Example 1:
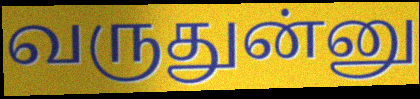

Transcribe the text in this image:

வருதுன்னு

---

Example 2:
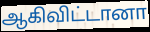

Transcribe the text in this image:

ஆகிவிட்டானா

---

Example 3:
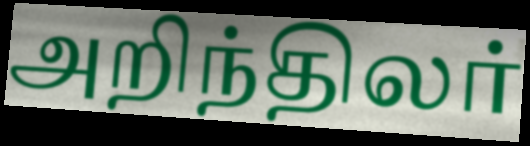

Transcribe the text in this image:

அறிந்திலர்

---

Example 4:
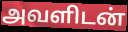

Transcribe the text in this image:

அவளிடன்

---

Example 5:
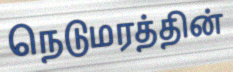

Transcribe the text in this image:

நெடுமரத்தின்